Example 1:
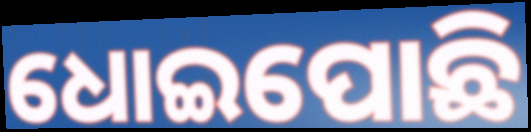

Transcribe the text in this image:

ଧୋଇପୋଛି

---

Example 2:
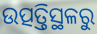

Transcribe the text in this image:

ଉତ୍ପତ୍ତିସ୍ଥଳରୁ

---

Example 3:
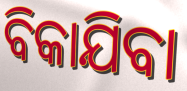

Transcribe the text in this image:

ବିକାଯିବା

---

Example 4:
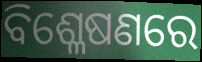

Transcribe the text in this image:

ବିଶ୍ଳେଷଣରେ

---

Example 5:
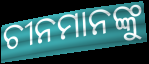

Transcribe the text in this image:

ଚୀନମାନଙ୍କୁ